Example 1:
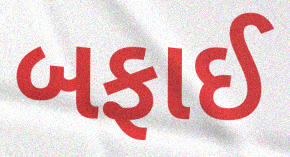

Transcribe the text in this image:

બફાઈ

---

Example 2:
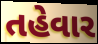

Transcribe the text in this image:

તહેવાર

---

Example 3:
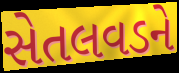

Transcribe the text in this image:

સેતલવડને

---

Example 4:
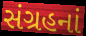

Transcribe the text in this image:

સંગ્રહનાં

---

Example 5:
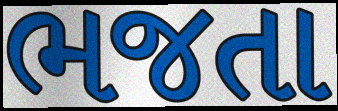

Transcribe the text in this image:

ભજતા